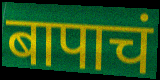
बापाचं